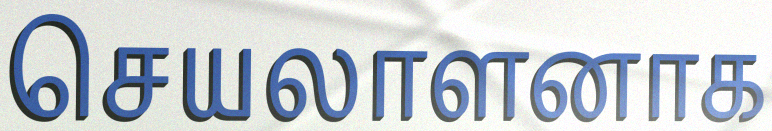
செயலாளனாக